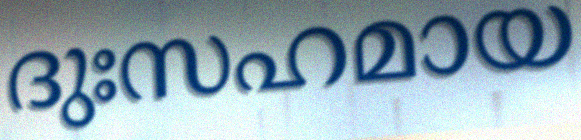
ദുഃസഹമായ